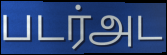
படர்அட